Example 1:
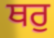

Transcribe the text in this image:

ਥਰੁ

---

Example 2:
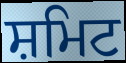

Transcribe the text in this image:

ਸ਼ਮਿਟ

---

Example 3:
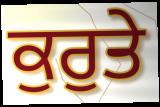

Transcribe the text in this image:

ਕੁਰੁਤੇ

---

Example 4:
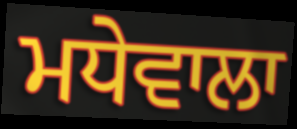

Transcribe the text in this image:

ਮਧੇਵਾਲਾ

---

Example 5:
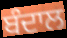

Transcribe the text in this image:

ਬੰਦਾਲ